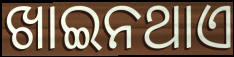
ଖାଇନଥାଏ